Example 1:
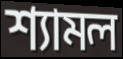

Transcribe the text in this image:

শ্যামল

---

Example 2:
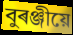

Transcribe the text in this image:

বুৰঞ্জীয়ে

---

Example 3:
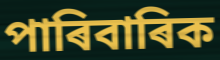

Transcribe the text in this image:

পাৰিবাৰিক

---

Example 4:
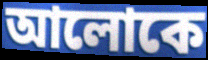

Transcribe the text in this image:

আলোকে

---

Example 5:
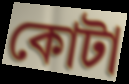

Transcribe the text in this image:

কোটা